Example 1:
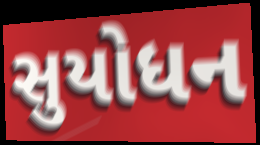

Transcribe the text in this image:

સુયોધન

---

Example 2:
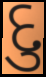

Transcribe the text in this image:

દુ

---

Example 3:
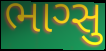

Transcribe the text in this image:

ભાગ્સુ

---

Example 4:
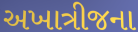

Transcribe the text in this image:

અખાત્રીજના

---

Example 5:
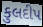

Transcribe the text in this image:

કુલદીપ